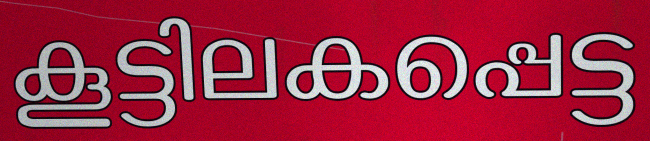
കൂട്ടിലകപ്പെട്ട